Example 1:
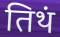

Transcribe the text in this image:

तिथं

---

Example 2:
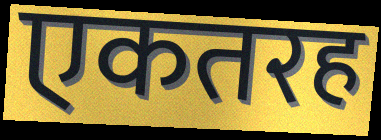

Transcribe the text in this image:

एकतरह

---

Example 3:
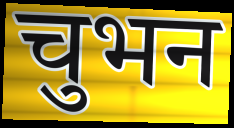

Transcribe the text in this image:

चुभन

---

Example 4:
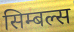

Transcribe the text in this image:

सिम्बल्स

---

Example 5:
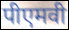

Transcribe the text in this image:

पीएमवी